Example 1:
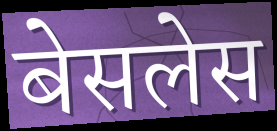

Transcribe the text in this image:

बेसलेस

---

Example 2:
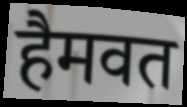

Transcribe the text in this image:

हैमवत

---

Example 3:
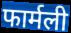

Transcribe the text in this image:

फार्मली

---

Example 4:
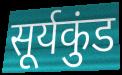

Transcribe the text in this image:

सूर्यकुंड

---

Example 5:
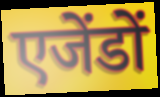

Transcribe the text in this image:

एजेंडों